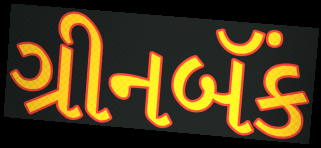
ગ્રીનબૅંક